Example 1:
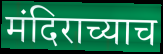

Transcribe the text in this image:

मंदिराच्याच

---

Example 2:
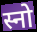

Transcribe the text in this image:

स्नो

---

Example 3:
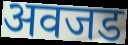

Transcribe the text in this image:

अवजड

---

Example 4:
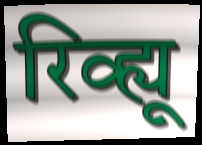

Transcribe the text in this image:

रिव्ह्यू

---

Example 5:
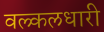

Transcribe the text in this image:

वल्कलधारी